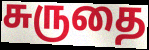
சுருதை